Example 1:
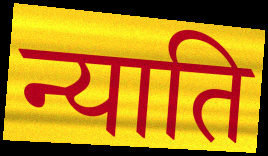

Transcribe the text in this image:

न्याति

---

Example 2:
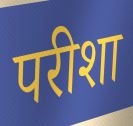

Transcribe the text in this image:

परीशा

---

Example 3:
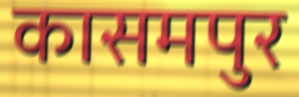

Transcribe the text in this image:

कासमपुर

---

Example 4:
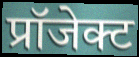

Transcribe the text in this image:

प्रॉजेक्‍ट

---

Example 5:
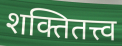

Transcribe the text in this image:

शक्तितत्त्व